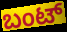
ಬಂಟ್